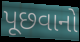
પૂછવાનો